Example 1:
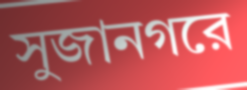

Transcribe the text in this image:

সুজানগরে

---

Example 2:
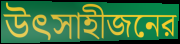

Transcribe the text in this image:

উৎসাহীজনের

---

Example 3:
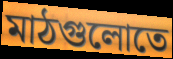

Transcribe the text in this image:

মাঠগুলোতে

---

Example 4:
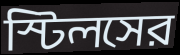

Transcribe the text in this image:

স্টিলসের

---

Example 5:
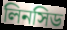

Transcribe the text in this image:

লিনসিড